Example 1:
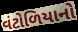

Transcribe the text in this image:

વંટોળિયાનો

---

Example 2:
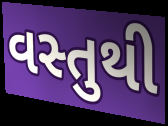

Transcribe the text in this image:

વસ્તુથી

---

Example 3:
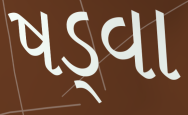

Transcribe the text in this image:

ષડ્વા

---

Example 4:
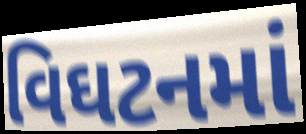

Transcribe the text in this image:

વિઘટનમાં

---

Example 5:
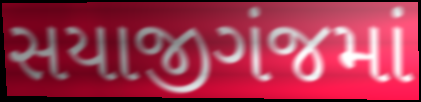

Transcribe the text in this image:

સયાજીગંજમાં